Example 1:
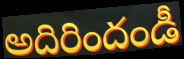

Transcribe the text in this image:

అదిరిందండీ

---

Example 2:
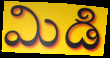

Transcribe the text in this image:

మిడి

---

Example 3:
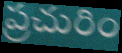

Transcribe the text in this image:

ప్రచురిం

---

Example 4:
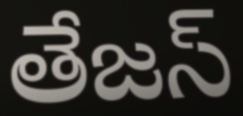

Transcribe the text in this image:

తేజస్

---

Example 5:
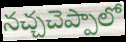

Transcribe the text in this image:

నచ్చచెప్పాలో